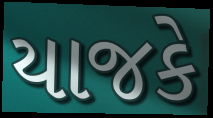
યાજકે